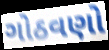
ગોઠવણો